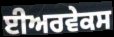
ਈਅਰਵੇਕਸ